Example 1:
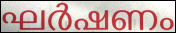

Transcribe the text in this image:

ഘർഷണം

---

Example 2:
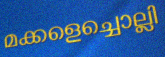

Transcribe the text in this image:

മക്കളെച്ചൊല്ലി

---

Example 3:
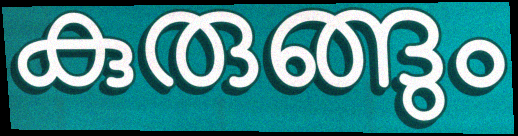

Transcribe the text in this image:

കുരുങ്ങും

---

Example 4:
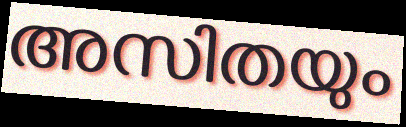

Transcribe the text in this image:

അസിതയും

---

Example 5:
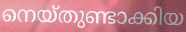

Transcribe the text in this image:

നെയ്തുണ്ടാക്കിയ